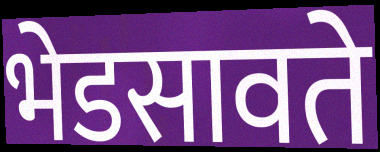
भेडसावते